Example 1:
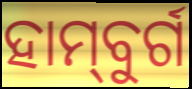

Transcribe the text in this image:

ହାମ୍‌ବୁର୍ଗ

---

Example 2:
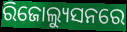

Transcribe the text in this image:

ରିଜୋଲ୍ୟୁସନରେ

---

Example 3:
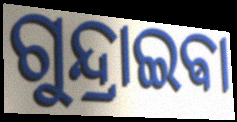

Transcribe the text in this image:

ଗୁନ୍ଦ୍ରାଇଵା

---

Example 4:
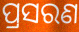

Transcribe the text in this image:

ପ୍ରସରଣ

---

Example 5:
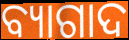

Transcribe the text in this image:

ବ୍ୟାଗାଦ